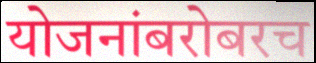
योजनांबरोबरच